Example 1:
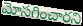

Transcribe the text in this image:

మోసగించారని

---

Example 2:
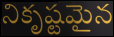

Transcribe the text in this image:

నికృష్టమైన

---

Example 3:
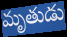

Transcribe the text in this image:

మృతుడు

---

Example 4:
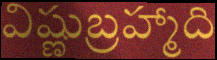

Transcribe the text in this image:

విష్ణుబ్రహ్మాది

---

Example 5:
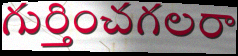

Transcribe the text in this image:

గుర్తించగలరా